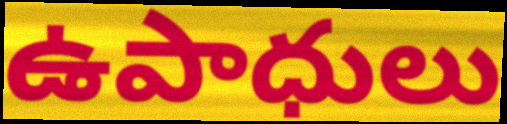
ఉపాధులు